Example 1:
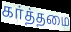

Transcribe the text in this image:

கர்த்தமை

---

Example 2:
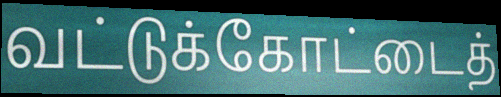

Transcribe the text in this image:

வட்டுக்கோட்டைத்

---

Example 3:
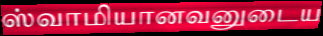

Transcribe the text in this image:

ஸ்வாமியானவனுடைய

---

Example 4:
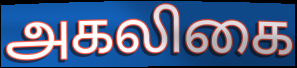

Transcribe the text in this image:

அகலிகை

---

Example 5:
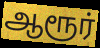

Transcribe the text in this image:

ஆரூர்